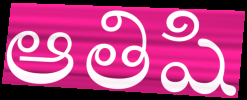
ఆతిషి